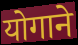
योगाने